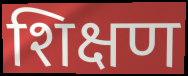
शिक्षण